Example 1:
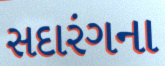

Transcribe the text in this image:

સદારંગના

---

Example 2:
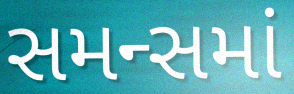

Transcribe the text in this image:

સમન્સમાં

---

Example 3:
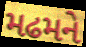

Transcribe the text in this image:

મઢમને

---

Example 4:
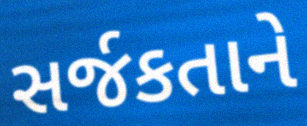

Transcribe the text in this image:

સર્જકતાને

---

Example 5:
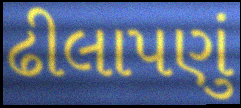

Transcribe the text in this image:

ઢીલાપણું